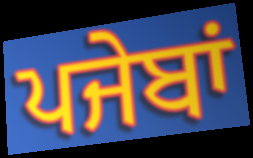
ਪਜੇਬਾਂ